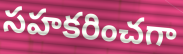
సహకరించగా